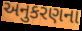
અનુકરણના